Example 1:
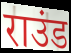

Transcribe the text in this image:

राउंड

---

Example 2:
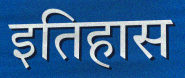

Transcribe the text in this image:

इतिहास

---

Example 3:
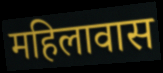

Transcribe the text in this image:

महिलावास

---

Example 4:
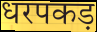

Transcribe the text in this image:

धरपकड़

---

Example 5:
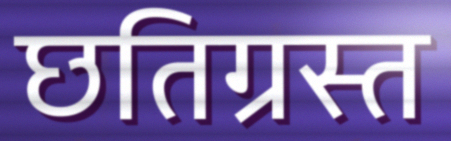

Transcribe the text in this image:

छतिग्रस्त